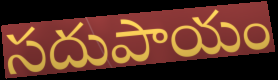
సదుపాయం